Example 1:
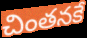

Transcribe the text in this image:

చింతనకే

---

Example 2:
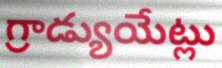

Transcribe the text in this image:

గ్రాడ్యుయేట్లు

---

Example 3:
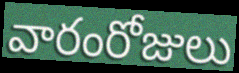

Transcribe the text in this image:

వారంరోజులు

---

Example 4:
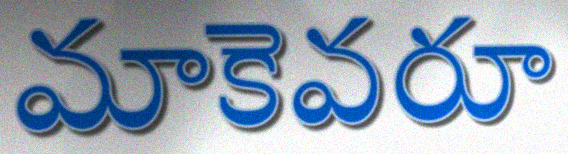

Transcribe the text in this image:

మాకెవరూ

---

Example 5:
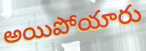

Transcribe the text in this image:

అయిపోయారు